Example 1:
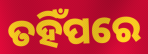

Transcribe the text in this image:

ତହିଁପରେ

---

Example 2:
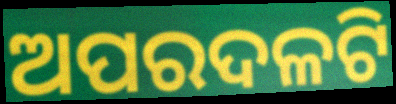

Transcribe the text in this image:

ଅପରଦଳଟି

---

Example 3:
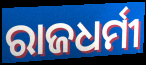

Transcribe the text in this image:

ରାଜଧର୍ମୀ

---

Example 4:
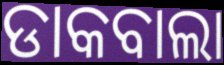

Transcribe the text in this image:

ଡାକବାଲା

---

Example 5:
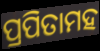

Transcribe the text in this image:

ପ୍ରପିତାମହ